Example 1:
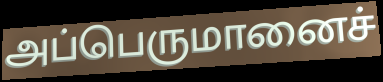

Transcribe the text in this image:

அப்பெருமானைச்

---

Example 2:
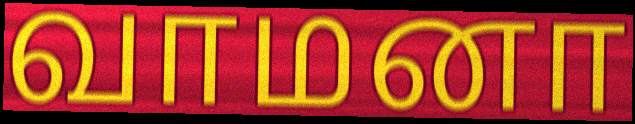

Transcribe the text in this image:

வாமனா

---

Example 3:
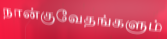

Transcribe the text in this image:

நான்குவேதங்களும்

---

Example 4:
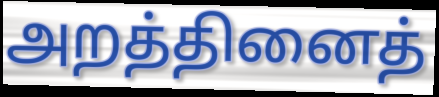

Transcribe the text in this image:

அறத்தினைத்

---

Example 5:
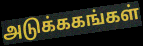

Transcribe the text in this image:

அடுக்ககங்கள்